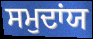
ਸਮੁਦਾਂਯ